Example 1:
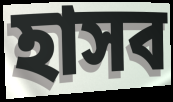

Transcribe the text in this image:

হাসব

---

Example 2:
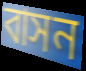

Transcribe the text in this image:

বাসন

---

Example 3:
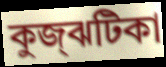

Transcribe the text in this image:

কুজ্‌ঝটিকা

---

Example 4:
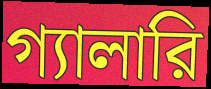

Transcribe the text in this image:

গ্যালারি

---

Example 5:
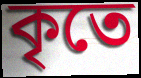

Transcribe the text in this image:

কৃতে